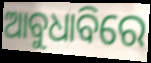
ଆବୁଧାବିରେ